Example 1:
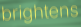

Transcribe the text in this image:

brightens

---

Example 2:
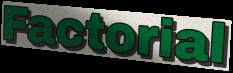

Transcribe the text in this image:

Factorial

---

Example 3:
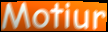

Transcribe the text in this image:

Motiur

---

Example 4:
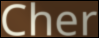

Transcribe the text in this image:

Cher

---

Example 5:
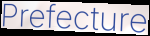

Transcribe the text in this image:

Prefecture